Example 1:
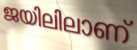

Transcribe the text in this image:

ജയിലിലാണ്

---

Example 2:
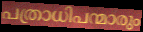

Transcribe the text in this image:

പത്രാധിപന്മാരും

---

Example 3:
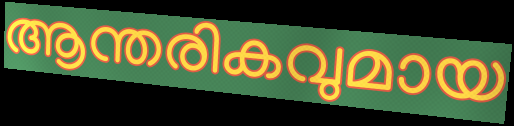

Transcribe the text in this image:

ആന്തരികവുമായ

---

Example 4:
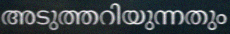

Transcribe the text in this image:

അടുത്തറിയുന്നതും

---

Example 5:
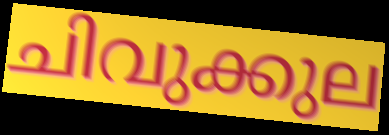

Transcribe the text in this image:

ചിവുക്കുല